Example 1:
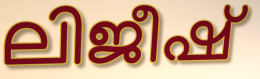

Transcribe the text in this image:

ലിജീഷ്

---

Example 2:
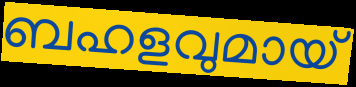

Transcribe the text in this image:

ബഹളവുമായ്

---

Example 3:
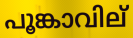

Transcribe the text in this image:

പൂങ്കാവില്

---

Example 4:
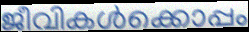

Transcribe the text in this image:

ജീവികൾക്കൊപ്പം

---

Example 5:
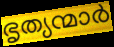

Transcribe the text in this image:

ഭൃത്യന്മാർ